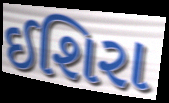
ઈશિરા